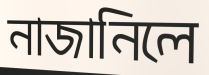
নাজানিলে